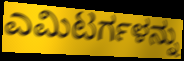
ಎಮಿಟರ್ಗಳನ್ನು